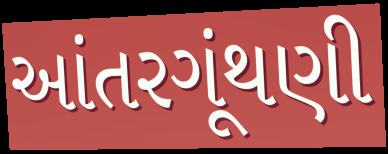
આંતરગૂંથણી